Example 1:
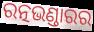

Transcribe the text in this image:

ରତ୍ନଭଣ୍ଡାରର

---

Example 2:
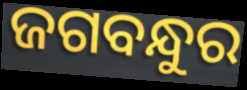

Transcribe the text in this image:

ଜଗବନ୍ଧୁର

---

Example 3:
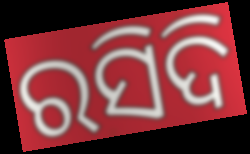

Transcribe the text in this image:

ରସିଦି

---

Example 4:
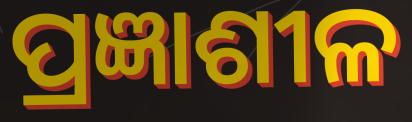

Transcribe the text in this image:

ପ୍ରଜ୍ଞାଶୀଳ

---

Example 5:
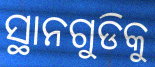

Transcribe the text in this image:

ସ୍ଥାନଗୁଡିକୁ